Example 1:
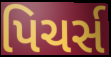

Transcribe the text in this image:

પિચર્સ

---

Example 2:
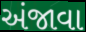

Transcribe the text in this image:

અંજાવા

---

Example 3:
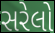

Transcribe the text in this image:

સરેલો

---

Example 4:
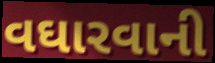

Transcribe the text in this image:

વઘારવાની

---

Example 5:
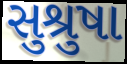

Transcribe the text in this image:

સુશ્રુષા